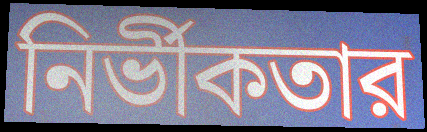
নির্ভীকতার